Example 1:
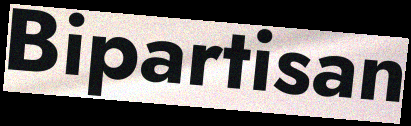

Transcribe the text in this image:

Bipartisan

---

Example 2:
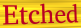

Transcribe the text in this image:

Etched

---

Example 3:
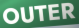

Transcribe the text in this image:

OUTER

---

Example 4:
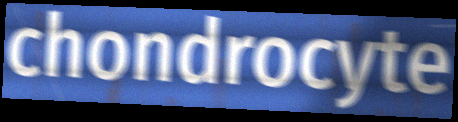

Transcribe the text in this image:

chondrocyte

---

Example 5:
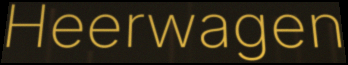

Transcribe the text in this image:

Heerwagen